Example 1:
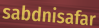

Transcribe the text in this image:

sabdnisafar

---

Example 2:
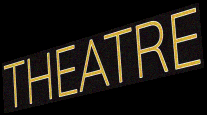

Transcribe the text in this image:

THEATRE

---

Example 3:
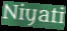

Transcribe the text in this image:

Niyati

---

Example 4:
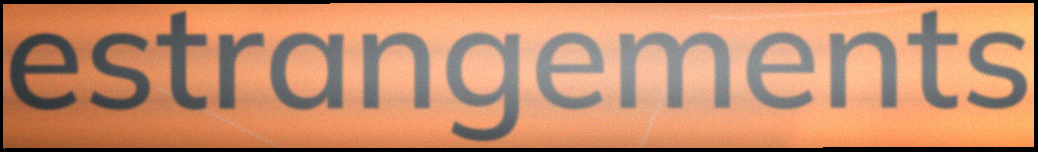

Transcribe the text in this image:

estrangements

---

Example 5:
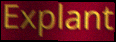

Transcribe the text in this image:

Explant